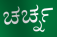
ಚರ್ಚ್ನ